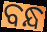
ବନ୍ଧ